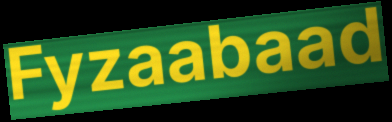
Fyzaabaad